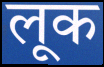
लूक